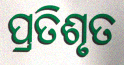
ପ୍ରତିଶୃତ